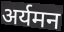
अर्यमन